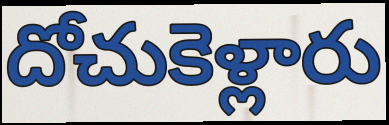
దోచుకెళ్లారు